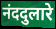
नंददुलारे